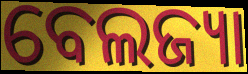
ବେଲଜ୍ୟା